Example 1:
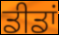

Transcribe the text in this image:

ਡੀਡਾਂ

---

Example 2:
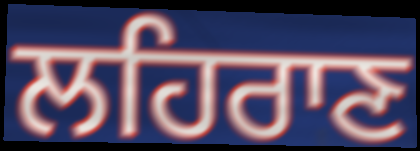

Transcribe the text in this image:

ਲਹਿਰਾਣ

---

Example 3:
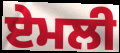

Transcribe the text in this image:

ਏਮਲੀ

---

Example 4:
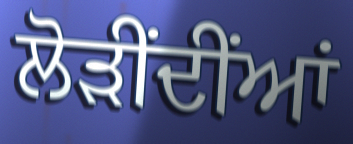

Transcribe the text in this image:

ਲੋੜੀਂਦੀਂਆਂ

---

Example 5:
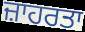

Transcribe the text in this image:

ਜ਼ਾਹਰਤਾ